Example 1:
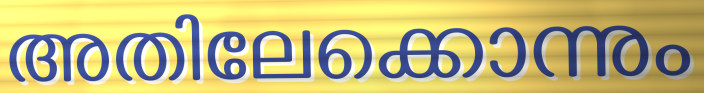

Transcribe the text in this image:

അതിലേക്കൊന്നും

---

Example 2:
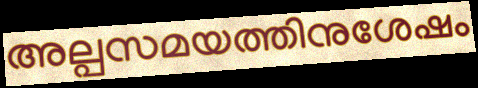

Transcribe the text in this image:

അല്പസമയത്തിനുശേഷം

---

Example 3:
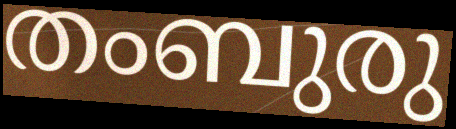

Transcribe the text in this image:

തംബുരു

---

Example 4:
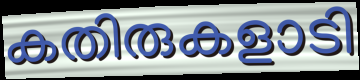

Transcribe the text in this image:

കതിരുകളാടി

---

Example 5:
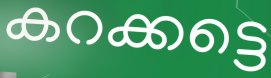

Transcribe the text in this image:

കറക്കട്ടെ